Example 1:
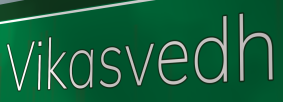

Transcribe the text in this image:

Vikasvedh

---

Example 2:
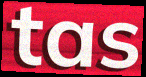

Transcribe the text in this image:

tas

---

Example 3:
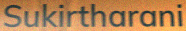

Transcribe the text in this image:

Sukirtharani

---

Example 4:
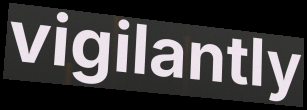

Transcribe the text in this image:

vigilantly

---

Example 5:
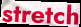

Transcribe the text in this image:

stretch